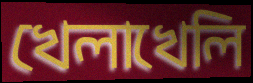
খেলাখেলি